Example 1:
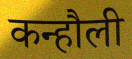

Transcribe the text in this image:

कन्हौली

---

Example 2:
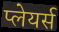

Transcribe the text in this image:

प्‍लेयर्स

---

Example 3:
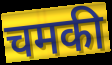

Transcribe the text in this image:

चमकी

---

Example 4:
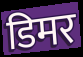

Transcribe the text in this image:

डिमर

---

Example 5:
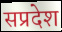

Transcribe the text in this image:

सप्रदेश